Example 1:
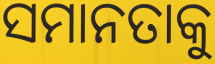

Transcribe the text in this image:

ସମାନତାକୁ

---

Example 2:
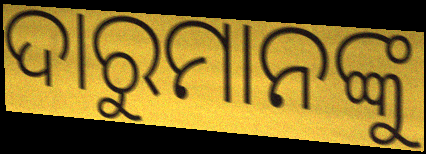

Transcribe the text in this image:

ଦାରୁମାନଙ୍କୁ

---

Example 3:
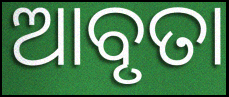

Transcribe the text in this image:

ଆବୃତା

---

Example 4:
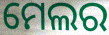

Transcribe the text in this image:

ମେଲର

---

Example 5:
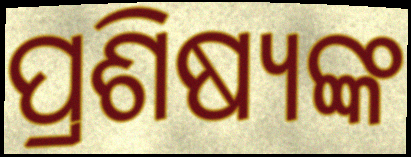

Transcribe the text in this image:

ପ୍ରଶିଷ୍ୟଙ୍କ